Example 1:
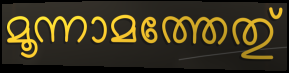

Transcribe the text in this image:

മൂന്നാമത്തേതു്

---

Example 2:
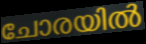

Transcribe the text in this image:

ചോരയിൽ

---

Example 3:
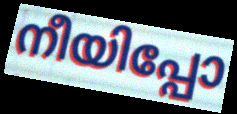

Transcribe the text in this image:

നീയിപ്പോ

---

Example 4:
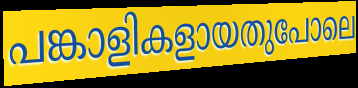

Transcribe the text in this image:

പങ്കാളികളായതുപോലെ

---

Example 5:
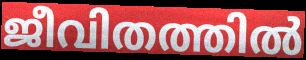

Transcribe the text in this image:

ജീവിതത്തിൽ